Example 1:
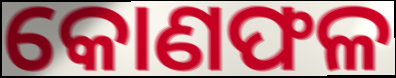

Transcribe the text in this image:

କୋଣଫଳ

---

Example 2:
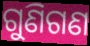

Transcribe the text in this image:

ଗୁଣିଗଣ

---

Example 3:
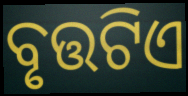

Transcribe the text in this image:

ବୃତ୍ତଟିଏ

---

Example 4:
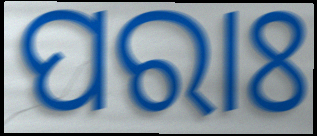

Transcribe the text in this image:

ପରାଃ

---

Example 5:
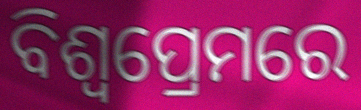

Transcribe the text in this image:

ବିଶ୍ୱପ୍ରେମରେ